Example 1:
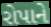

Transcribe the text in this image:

રોપાને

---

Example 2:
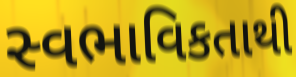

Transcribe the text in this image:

સ્વભાવિકતાથી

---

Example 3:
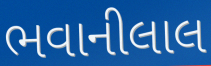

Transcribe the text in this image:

ભવાનીલાલ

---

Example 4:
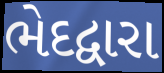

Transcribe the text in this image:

ભેદદ્વારા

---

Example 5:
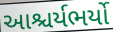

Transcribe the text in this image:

આશ્ચર્યભર્યો